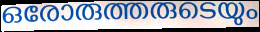
ഒരോരുത്തരുടെയും